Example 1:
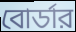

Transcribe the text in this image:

বোর্ডার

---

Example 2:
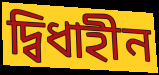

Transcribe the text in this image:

দ্বিধাহীন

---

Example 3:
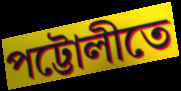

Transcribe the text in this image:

পট্টোলীতে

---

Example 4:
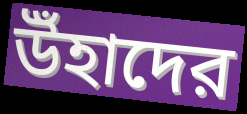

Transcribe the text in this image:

উঁহাদের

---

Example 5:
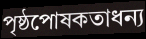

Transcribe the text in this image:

পৃষ্ঠপোষকতাধন্য